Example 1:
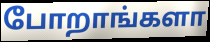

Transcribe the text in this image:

போறாங்களா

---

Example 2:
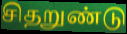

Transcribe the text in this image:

சிதறுண்டு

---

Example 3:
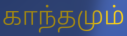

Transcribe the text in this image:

காந்தமும்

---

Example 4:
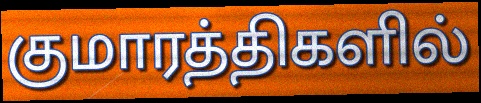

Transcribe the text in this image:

குமாரத்திகளில்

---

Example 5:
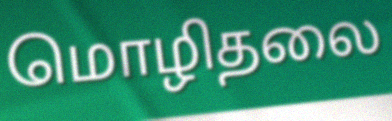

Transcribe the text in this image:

மொழிதலை